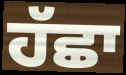
ਹੱਛਾ